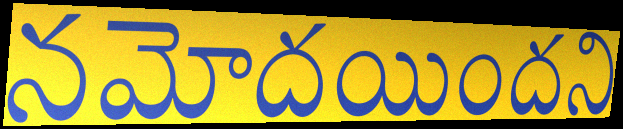
నమోదయిందని